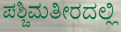
ಪಶ್ಚಿಮತೀರದಲ್ಲಿ